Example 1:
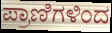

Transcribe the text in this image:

ಪ್ರಾಣಿಗಳಿಂದ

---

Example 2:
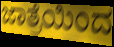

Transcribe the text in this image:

ಜಾತ್ರೆಯಿಂದ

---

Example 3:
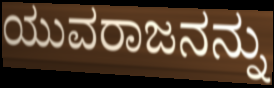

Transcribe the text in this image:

ಯುವರಾಜನನ್ನು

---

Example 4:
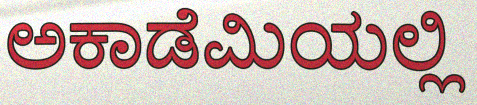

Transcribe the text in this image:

ಅಕಾಡೆಮಿಯಲ್ಲಿ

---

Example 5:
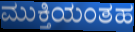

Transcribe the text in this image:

ಮುಕ್ತಿಯಂತಹ